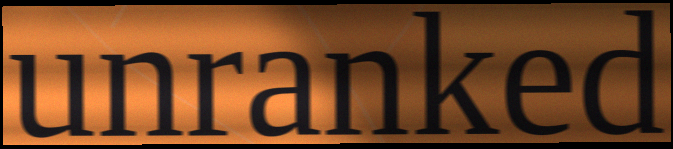
unranked